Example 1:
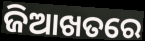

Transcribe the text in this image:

ଜିଆଖତରେ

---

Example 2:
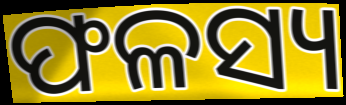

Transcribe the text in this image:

ଫଳସ୍ୟ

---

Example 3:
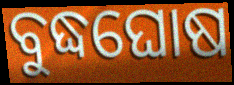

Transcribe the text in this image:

ବୁଦ୍ଧଘୋଷ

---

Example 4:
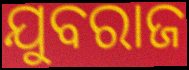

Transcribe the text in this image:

ଯୁବରାଜ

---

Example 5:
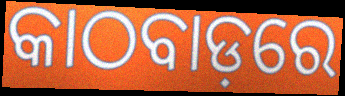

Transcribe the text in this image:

କାଠବାଡ଼ରେ